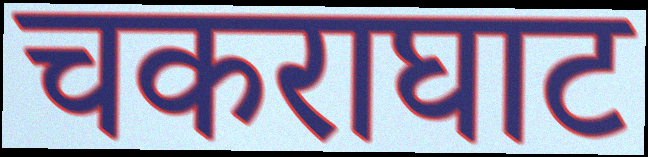
चकराघाट